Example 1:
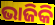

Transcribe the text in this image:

ଭାଜିକି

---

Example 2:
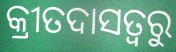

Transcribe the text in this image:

କ୍ରୀତଦାସତ୍ୱରୁ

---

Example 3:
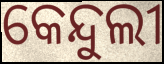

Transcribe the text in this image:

କେନ୍ଦୁଲୀ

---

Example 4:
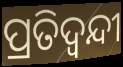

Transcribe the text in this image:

ପ୍ରତିଦ୍ଵନ୍ଦୀ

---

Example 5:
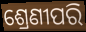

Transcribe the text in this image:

ଶ୍ରେଣୀପରି